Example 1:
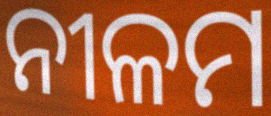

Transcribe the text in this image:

ନୀଳମ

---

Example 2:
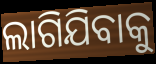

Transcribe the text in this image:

ଲାଗିଯିବାକୁ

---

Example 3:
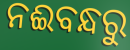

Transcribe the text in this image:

ନଈବନ୍ଧରୁ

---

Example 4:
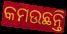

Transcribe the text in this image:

କମଉଛନ୍ତି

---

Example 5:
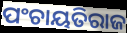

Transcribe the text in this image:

ପଂଚାୟତିରାଜ